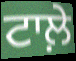
ਟਾਲ਼ੇ